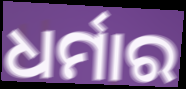
ଧର୍ମାର